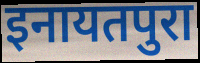
इनायतपुरा